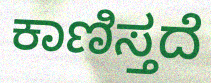
ಕಾಣಿಸ್ತದೆ